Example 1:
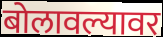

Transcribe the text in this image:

बोलावल्यावर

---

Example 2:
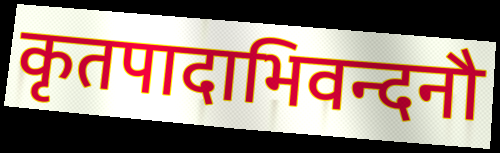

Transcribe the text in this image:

कृतपादाभिवन्दनौ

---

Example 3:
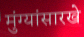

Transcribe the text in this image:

मुंग्यांसारखे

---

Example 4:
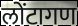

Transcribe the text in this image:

लोंटागण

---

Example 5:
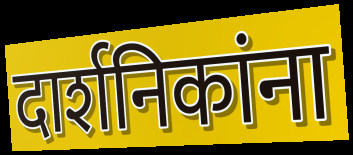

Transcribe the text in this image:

दार्शनिकांना